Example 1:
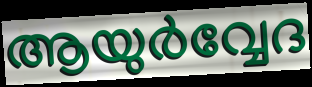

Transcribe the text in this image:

ആയുർവ്വേദ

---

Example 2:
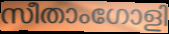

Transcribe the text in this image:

സീതാംഗോളി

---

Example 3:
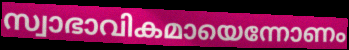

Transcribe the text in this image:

സ്വാഭാവികമായെന്നോണം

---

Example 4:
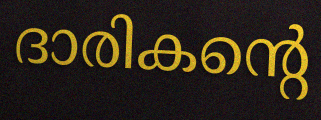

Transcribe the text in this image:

ദാരികന്റെ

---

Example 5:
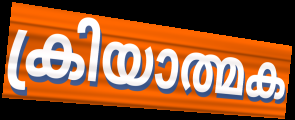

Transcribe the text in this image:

ക്രിയാത്മക